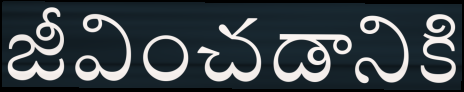
జీవించడానికి